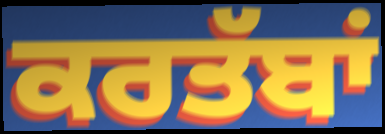
ਕਰਤੱਬਾਂ